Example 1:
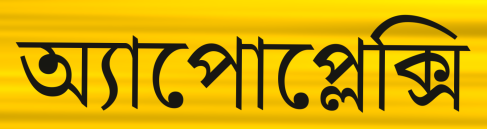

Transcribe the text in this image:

অ্যাপোপ্লেক্সি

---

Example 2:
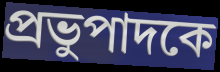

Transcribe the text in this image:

প্রভুপাদকে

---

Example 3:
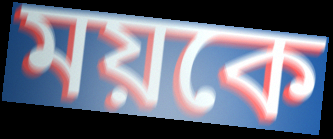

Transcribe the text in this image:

ময়কে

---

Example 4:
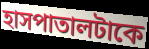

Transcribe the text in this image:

হাসপাতালটাকে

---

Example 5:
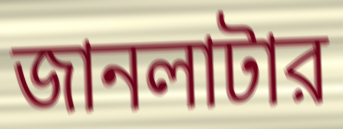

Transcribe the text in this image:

জানলাটার